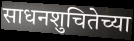
साधनशुचितेच्या